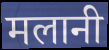
मलानी